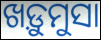
ଖଡ଼ୁମୁସା